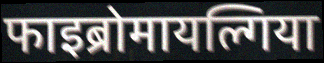
फाइब्रोमायल्गिया